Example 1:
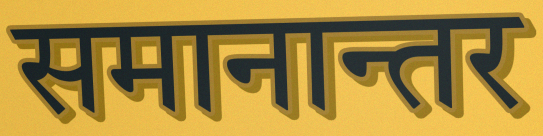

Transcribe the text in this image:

समानान्तर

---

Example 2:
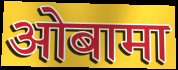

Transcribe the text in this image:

ओबामा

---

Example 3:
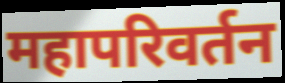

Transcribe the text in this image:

महापरिवर्तन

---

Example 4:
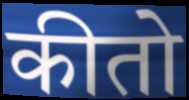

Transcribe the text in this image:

कीतो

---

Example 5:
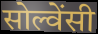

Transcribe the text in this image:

सोल्वेंसी